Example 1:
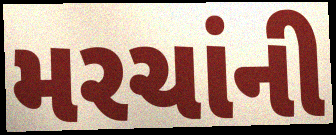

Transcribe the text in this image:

મરચાંની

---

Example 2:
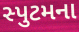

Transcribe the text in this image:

સ્પુટમના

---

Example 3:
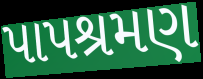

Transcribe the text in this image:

પાપશ્રમણ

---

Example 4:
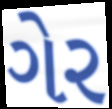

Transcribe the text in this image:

ગેર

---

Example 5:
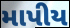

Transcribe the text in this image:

માપીય